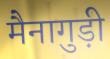
मैनागुड़ी